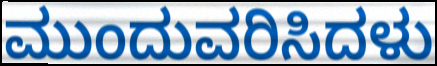
ಮುಂದುವರಿಸಿದಳು